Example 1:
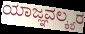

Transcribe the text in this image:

ಯಾಜ್ಞವಲ್ಕ್ಯರ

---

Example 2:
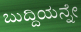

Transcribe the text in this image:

ಬುದ್ದಿಯನ್ನೇ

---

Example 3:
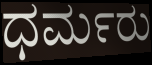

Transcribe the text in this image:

ಧರ್ಮರು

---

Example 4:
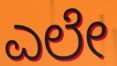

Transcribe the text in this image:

ಎಲೇ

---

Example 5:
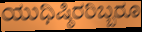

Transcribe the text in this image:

ಯುಧಿಷ್ಠಿರರಿಬ್ಬರೂ